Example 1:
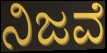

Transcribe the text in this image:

ನಿಜವೆ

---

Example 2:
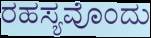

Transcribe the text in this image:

ರಹಸ್ಯವೊಂದು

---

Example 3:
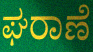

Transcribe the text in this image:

ಘರಾಣೆ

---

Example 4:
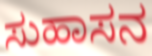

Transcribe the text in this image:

ಸುಹಾಸನ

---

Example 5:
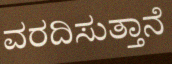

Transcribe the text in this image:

ವರದಿಸುತ್ತಾನೆ